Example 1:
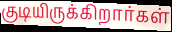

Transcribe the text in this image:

குடியிருக்கிறார்கள்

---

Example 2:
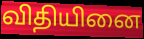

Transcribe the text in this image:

விதியினை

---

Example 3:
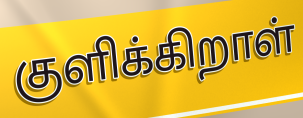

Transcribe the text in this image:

குளிக்கிறாள்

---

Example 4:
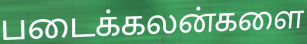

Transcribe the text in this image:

படைக்கலன்களை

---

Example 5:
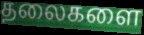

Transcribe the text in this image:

தலைகளை